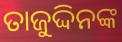
ତାଜୁଦ୍ଦିନଙ୍କ